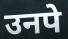
उनपे